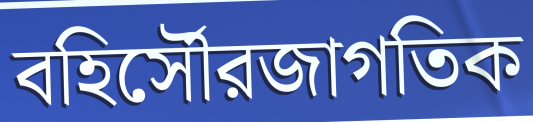
বহির্সৌরজাগতিক